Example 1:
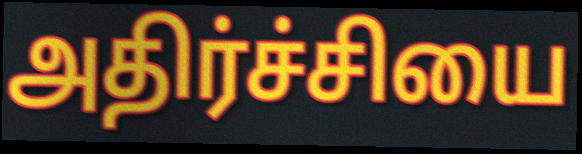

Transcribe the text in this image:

அதிர்ச்சியை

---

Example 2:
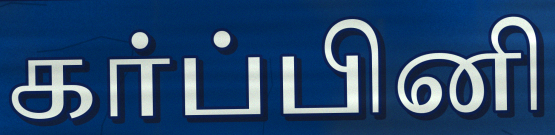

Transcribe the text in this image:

கர்ப்பினி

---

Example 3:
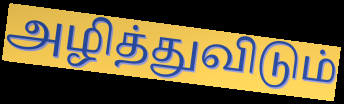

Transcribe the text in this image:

அழித்துவிடும்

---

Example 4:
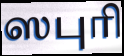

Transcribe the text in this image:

ஸபுரி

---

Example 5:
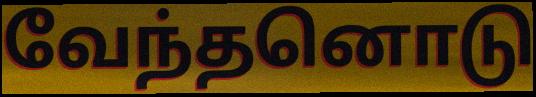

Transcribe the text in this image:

வேந்தனொடு